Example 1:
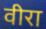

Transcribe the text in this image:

वीरा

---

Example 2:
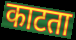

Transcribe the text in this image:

काटता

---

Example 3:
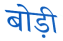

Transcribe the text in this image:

बोड़ी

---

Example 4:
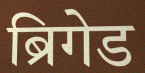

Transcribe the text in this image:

ब्रिगेड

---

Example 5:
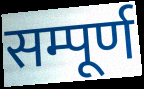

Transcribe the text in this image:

सम्पूर्ण